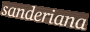
sanderiana